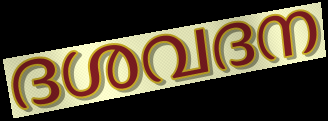
ദശവദന